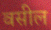
वसील